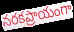
నరకప్రాయంగా